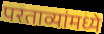
परताव्यांमध्ये